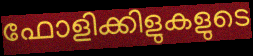
ഫോളിക്കിളുകളുടെ